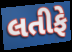
લતીફે